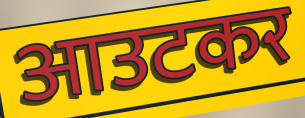
आउटकर